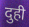
दुही